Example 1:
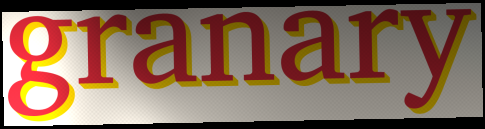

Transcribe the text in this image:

granary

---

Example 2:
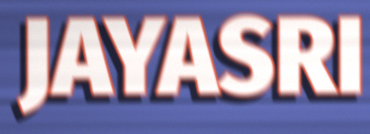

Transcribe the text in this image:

JAYASRI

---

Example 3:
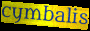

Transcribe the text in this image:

cymbalis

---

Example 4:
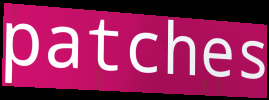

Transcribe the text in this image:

patches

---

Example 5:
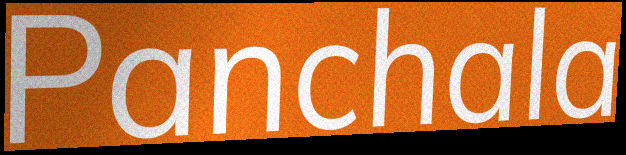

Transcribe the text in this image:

Panchala